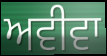
ਅਵੀਵਾ